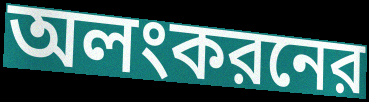
অলংকরনের